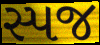
સ્પજ